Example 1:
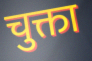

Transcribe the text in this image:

चुक्ता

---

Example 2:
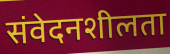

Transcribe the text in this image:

संवेदनशीलता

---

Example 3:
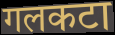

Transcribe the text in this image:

गलकटा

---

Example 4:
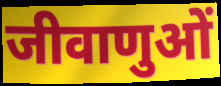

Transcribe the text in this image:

जीवाणुओं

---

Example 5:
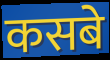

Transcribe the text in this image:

कसबे